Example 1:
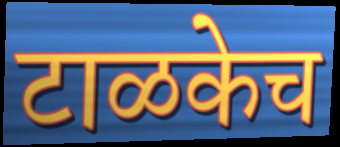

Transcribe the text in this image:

टाळकेच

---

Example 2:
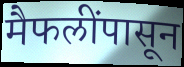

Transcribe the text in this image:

मैफलींपासून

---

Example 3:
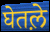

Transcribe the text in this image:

घेतल़े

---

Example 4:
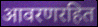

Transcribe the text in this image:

आवरणरहित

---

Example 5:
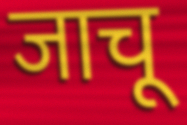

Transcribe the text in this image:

जाचू